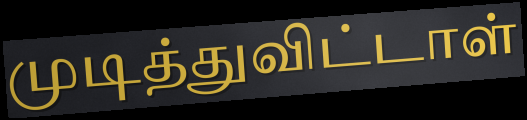
முடித்துவிட்டாள்